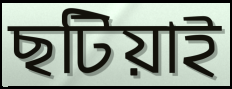
ছটিয়াই